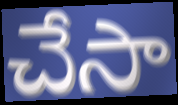
చేసా